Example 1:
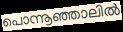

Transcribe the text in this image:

പൊന്നൂഞ്ഞാലിൽ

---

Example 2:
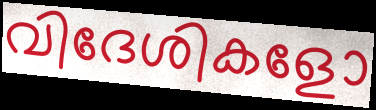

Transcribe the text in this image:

വിദേശികളോ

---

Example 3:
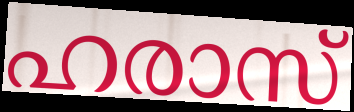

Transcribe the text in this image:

ഹരാസ്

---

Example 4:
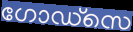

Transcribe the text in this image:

ഗോഡ്സെ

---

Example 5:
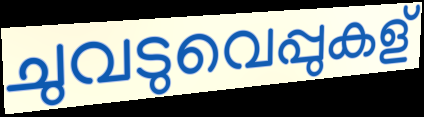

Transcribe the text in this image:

ചുവടുവെപ്പുകള്